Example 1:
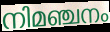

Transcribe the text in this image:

നിമഞ്ചനം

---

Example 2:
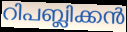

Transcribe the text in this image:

റിപബ്ലിക്കൻ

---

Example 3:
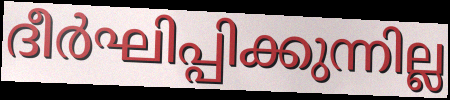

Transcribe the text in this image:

ദീർഘിപ്പിക്കുന്നില്ല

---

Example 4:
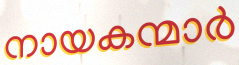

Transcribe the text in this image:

നായകന്മാർ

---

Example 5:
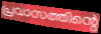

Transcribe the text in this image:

പ്രവാസത്തിന്റെ